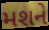
મશને